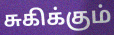
சுகிக்கும்